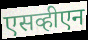
एसव्हीएन